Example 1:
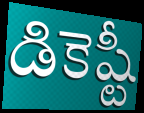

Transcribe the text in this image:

డికెష్టీ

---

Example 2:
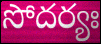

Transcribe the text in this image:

సోదర్యః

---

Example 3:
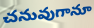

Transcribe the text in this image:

చనువుగానూ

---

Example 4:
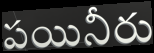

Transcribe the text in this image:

పయినీరు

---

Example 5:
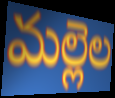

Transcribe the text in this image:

మల్లెల